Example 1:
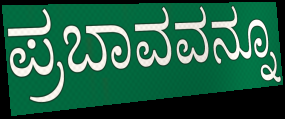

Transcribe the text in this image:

ಪ್ರಬಾವವನ್ನೂ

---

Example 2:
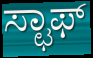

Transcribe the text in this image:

ಸ್ಟಾಫ್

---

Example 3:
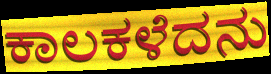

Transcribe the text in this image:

ಕಾಲಕಳೆದನು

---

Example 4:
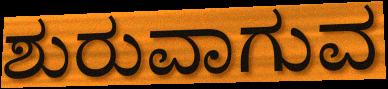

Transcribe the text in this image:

ಶುರುವಾಗುವ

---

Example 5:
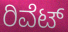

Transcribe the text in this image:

ರಿವೆಟ್